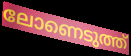
ലോണെടുത്ത്